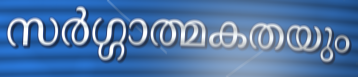
സർഗ്ഗാത്മകതയും